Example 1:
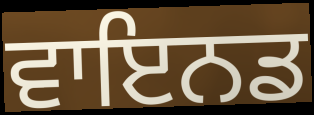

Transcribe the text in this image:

ਵਾਇਨਡ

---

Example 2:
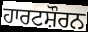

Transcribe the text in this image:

ਹਾਰਟਸ਼ੌਰਨ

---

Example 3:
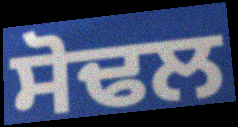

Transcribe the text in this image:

ਸੋਢਲ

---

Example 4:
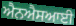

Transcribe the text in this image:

ਐਨਐਸਆਈ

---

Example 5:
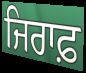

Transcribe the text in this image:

ਜਿਰਾਫ਼